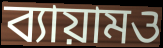
ব্যায়ামও